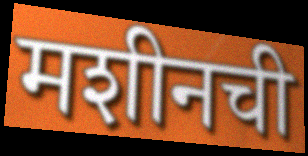
मशीनची